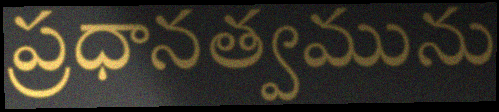
ప్రధానత్వమును